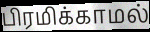
பிரமிக்காமல்